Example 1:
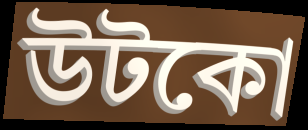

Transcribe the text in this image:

উটকো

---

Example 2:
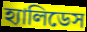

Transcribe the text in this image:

হ্যালিডেস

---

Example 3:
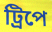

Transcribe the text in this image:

ট্রিপে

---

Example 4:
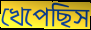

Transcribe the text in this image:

খেপেছিস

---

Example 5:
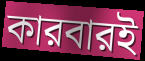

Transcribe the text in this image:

কারবারই